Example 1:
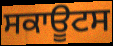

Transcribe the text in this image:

ਸਕਾਊਟਸ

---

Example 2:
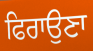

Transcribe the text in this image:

ਫਿਰਾਉਣਾ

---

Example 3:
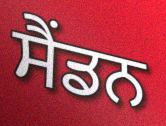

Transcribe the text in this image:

ਸੈਂਡਨ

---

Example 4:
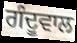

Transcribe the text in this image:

ਗੰਦੂਵਾਲ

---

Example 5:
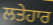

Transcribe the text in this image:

ਲਤੇਹਾਰ